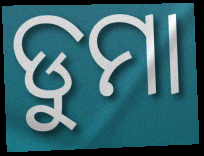
ଡୁମା